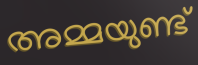
അമ്മയുണ്ട്